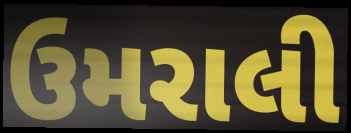
ઉમરાલી